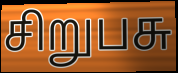
சிறுபசு